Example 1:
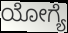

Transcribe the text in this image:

ಯೋಗ್ಯೆ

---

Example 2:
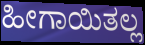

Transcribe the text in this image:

ಹೀಗಾಯಿತಲ್ಲ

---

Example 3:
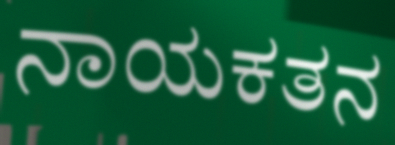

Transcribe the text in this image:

ನಾಯಕತನ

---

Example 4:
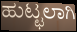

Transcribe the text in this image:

ಹುಟ್ಟಲಾಗಿ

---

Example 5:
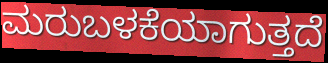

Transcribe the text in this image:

ಮರುಬಳಕೆಯಾಗುತ್ತದೆ